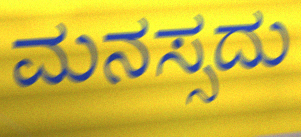
ಮನಸ್ಸದು